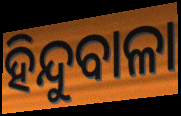
ହିନ୍ଦୁବାଳା